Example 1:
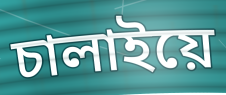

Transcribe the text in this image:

চালাইয়ে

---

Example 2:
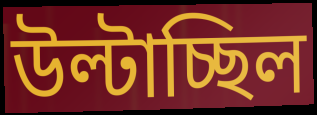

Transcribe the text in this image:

উল্টাচ্ছিল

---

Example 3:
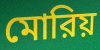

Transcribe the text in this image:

মোরিয়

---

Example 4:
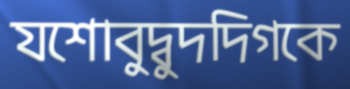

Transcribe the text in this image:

যশোবুদ্বুদদিগকে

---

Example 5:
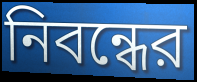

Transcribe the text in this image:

নিবন্ধের